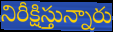
నిరీక్షిస్తున్నారు